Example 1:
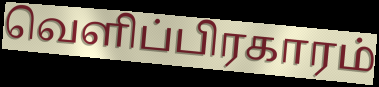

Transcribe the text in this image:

வெளிப்பிரகாரம்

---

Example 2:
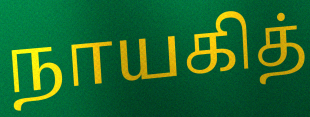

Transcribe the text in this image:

நாயகித்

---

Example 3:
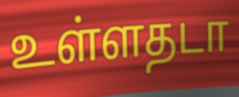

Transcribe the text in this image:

உள்ளதடா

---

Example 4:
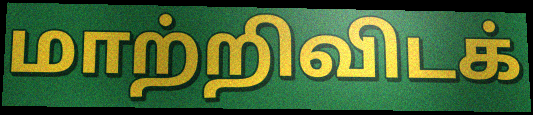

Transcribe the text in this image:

மாற்றிவிடக்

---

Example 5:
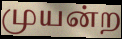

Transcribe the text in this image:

முயன்ற